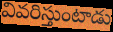
వివరిస్తుంటాడు